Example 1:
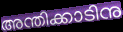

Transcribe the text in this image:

അന്തിക്കാടിനു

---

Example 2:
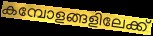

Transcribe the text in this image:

കമ്പോളങ്ങളിലേക്ക്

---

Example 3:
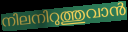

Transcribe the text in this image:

നിലനിറുത്തുവാൻ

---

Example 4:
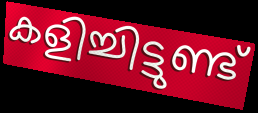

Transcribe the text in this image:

കളിച്ചിട്ടുണ്ട്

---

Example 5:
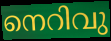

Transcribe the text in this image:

നെറിവു